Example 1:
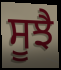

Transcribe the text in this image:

ਸੂਝੈ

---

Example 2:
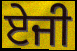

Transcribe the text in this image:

ਏਜੀ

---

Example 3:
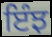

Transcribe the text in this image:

ਇੰਝ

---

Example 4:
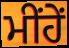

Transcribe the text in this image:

ਮੀਂਹੇਂ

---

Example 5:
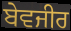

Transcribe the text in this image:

ਬੇਵਜੀਰ